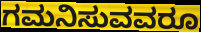
ಗಮನಿಸುವವರೂ